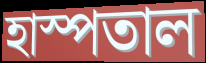
হাস্পতাল